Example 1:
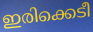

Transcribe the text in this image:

ഇരിക്കെടീ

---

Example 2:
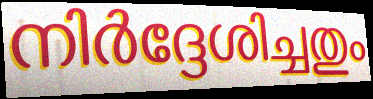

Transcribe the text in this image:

നിർദ്ദേശിച്ചതും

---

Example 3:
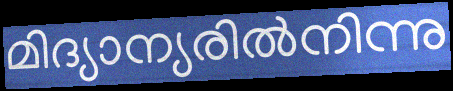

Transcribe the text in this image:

മിദ്യാന്യരിൽനിന്നു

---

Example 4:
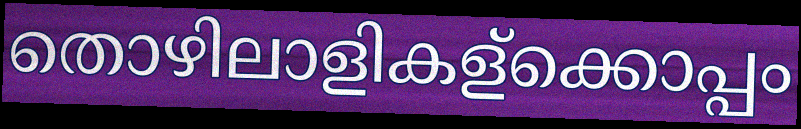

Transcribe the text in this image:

തൊഴിലാളികള്ക്കൊപ്പം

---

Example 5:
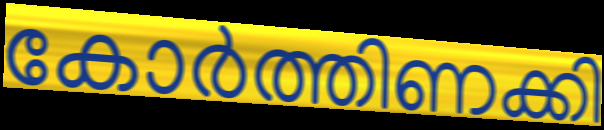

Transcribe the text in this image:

കോർത്തിണക്കി